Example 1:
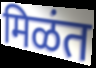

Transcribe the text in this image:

मिळंत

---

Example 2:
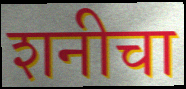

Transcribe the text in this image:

शनीचा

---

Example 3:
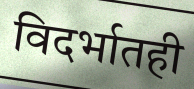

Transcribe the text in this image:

विदर्भातही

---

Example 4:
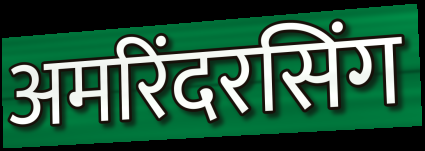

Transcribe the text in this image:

अमरिंदरसिंग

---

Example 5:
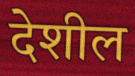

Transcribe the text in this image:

देशील